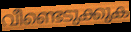
വീണ്ടെടുക്കുക